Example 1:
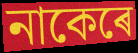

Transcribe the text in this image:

নাকেৰে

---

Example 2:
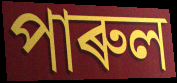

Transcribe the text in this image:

পাৰুল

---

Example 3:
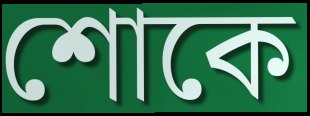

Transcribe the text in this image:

শোকে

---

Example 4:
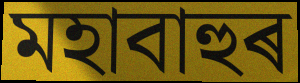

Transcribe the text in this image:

মহাবাহুৰ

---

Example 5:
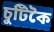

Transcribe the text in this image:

চুটিকৈ